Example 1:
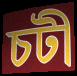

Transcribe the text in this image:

চটী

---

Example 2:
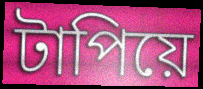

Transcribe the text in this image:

টাপিয়ে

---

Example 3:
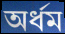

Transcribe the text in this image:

অর্ধম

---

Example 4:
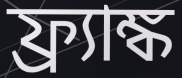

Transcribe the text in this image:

ফ্র্যাঙ্ক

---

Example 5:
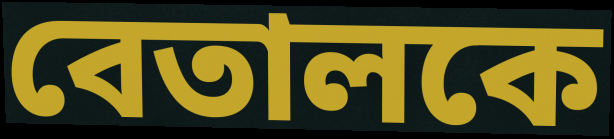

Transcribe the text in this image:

বেতালকে